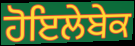
ਹੋਇਲੇਬੇਕ